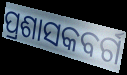
ପ୍ରଶାସକବର୍ଗ